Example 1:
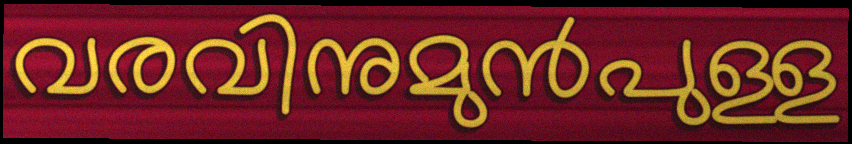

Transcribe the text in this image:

വരവിനുമുൻപുള്ള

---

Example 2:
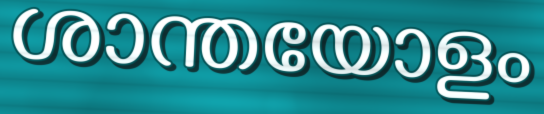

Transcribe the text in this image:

ശാന്തയോളം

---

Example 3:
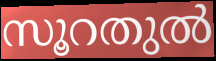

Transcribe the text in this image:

സൂറതുൽ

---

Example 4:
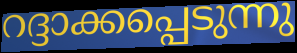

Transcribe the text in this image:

റദ്ദാക്കപ്പെടുന്നു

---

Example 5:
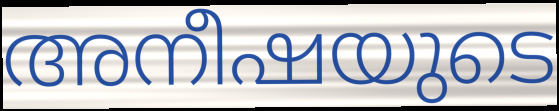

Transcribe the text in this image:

അനീഷയുടെ